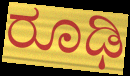
ರೂಢಿ